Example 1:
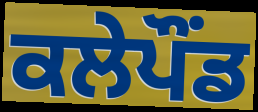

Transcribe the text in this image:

ਕਲੇਪੌਂਡ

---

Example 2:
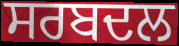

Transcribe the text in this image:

ਸਰਬਦਲ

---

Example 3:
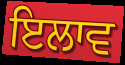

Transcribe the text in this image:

ਇਲਾਵ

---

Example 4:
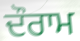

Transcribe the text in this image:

ਦੌਰਾਮ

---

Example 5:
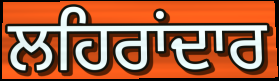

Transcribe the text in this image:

ਲਹਿਰਾਂਦਾਰ